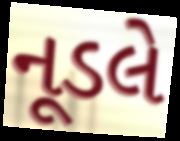
નૂડલે